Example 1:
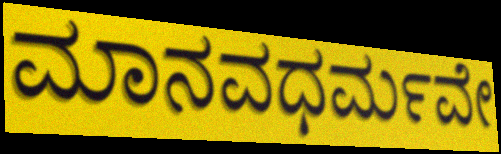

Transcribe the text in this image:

ಮಾನವಧರ್ಮವೇ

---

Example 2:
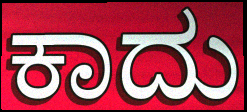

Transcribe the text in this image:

ಕಾದು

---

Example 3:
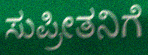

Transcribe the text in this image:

ಸುಪ್ರೀತನಿಗೆ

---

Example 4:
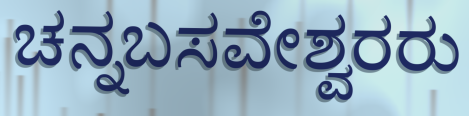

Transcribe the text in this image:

ಚನ್ನಬಸವೇಶ್ವರರು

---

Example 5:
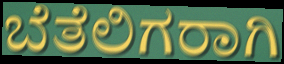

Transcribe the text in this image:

ಬೆತೆಲಿಗರಾಗಿ